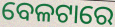
ବେଳଟାରେ